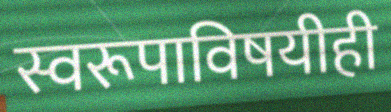
स्वरूपाविषयीही